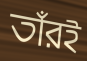
তাঁরই